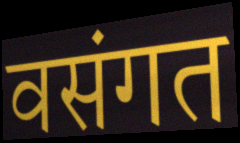
वसंगत